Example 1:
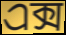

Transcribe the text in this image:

এক্স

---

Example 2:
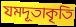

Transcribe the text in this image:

যমদূতাকৃতি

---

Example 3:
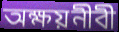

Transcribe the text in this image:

অক্ষয়নীবী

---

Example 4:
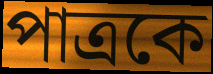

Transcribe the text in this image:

পাত্রকে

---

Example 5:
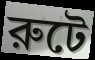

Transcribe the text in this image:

রুটে